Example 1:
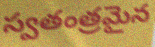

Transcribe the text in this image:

స్వతంత్రమైన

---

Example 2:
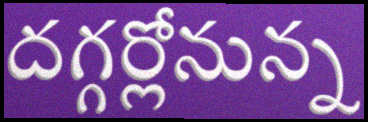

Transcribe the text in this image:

దగ్గర్లోనున్న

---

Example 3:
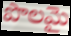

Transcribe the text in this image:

పొలమై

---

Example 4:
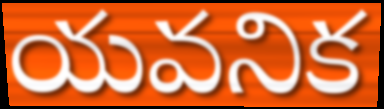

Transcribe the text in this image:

యవనిక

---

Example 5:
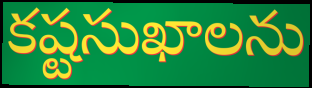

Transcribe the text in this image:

కష్టసుఖాలను